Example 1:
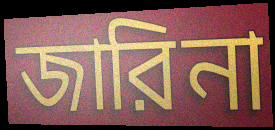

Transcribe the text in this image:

জারিনা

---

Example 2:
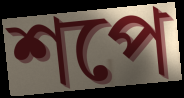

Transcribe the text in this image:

শপে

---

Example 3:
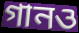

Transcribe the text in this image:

গানও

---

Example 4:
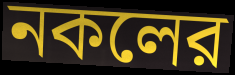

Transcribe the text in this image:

নকলের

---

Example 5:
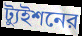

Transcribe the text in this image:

ট্যুইশনের